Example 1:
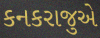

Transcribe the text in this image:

કનકરાજુએ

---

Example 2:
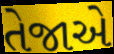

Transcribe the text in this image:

તેજાએ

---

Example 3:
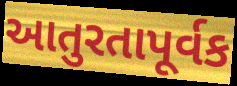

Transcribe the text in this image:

આતુરતાપૂર્વક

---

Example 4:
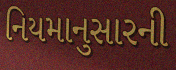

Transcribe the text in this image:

નિયમાનુસારની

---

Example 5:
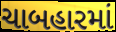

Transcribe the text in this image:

ચાબહારમાં